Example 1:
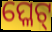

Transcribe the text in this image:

ପ୍ଳେଟ୍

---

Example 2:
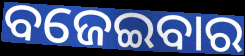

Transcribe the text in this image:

ବଜେଇବାର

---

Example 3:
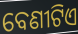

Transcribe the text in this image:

ବେଣୀଟିଏ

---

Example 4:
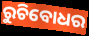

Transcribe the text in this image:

ରୁଚିବୋଧର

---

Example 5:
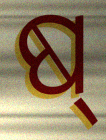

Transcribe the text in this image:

ଷ୍